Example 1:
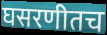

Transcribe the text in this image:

घसरणीतच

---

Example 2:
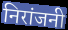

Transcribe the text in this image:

निरांजनी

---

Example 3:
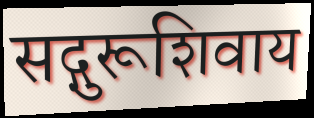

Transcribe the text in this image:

सद्गुरूशिवाय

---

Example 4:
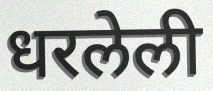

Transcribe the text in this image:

धरलेली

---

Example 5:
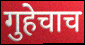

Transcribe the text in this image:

गुहेचाच